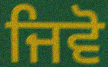
ਜਿਵੋ